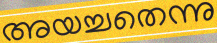
അയച്ചതെന്നു